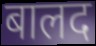
बालद